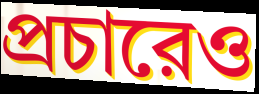
প্রচারেও